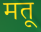
मतू